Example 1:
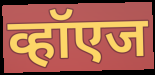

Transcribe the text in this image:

व्हॉएज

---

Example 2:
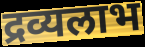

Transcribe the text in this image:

द्रव्यलाभ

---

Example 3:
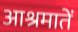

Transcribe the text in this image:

आश्रमातें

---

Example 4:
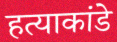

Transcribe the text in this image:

हत्याकांडे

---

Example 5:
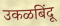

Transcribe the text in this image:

उकळबिंदू